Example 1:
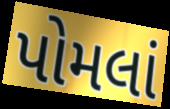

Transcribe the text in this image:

પોમલાં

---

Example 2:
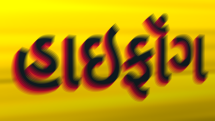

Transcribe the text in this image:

હાઇફૉંગ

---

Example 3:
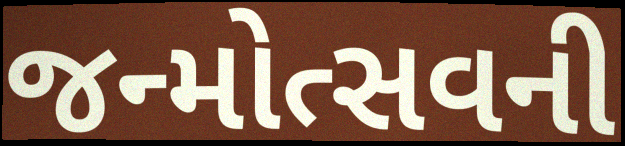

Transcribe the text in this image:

જન્મોત્સવની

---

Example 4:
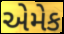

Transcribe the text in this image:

એમેક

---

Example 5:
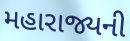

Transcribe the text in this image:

મહારાજ્યની